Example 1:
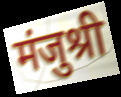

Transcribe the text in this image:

मंजुश्री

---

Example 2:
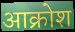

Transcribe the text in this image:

आक्रोश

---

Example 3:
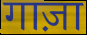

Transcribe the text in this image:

गाज़ा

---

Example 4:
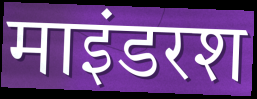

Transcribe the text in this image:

माइंडरश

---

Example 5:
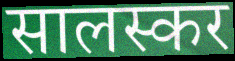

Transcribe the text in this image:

सालस्कर